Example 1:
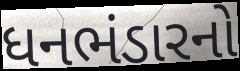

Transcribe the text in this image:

ધનભંડારનો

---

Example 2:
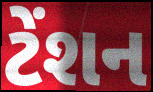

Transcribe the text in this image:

ટેંશન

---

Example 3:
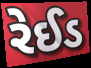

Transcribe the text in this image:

રેઈડ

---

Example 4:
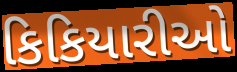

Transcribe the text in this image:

કિકિયારીઓ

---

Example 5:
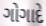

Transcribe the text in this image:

ગોગાદે